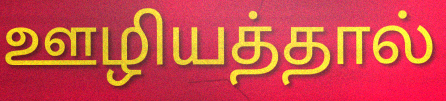
ஊழியத்தால்